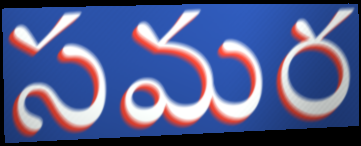
సమర